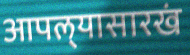
आपल्यासारखं